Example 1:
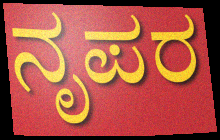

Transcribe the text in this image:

ನೃಪರ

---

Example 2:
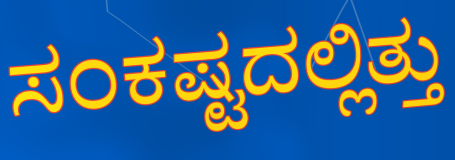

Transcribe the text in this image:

ಸಂಕಷ್ಟದಲ್ಲಿತ್ತು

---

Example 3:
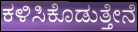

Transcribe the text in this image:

ಕಳಿಸಿಕೊಡುತ್ತೇನೆ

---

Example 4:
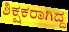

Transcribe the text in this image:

ಶಿಕ್ಷಕರಾಗಿದ್ದ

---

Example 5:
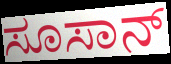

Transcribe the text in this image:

ಸೂಸಾನ್